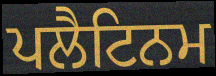
ਪਲੈਟਿਨਮ